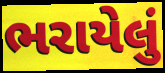
ભરાયેલું